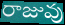
రాజువు